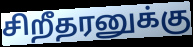
சிறீதரனுக்கு